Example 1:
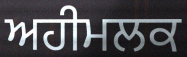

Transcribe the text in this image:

ਅਹੀਮਲਕ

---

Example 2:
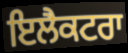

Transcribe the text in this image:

ਇਲੈਕਟਰਾ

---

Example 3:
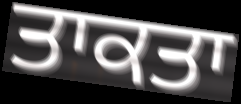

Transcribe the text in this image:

ਤਾਕਤਾ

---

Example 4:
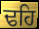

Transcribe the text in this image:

ਢਹਿ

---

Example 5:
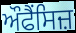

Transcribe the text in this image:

ਔਫੈਂਸਿਜ਼